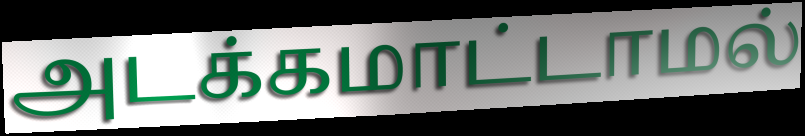
அடக்கமாட்டாமல்